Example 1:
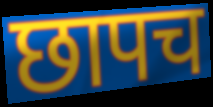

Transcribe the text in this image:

छापच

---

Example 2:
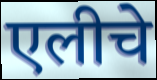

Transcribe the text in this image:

एलीचे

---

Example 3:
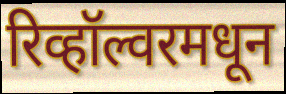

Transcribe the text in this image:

रिव्हॉल्वरमधून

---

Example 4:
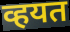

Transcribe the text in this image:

व्हयत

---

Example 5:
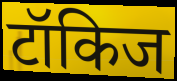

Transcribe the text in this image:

टॉकिज